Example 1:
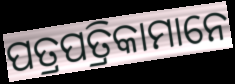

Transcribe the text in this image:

ପତ୍ରପତ୍ରିକାମାନେ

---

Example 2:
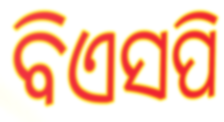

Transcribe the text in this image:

ବିଏସପି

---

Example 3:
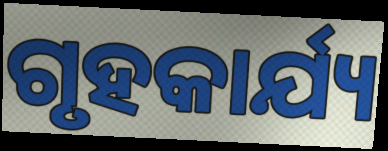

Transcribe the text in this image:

ଗୃହକାର୍ଯ୍ୟ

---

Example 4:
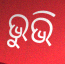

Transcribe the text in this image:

ଭୁଭି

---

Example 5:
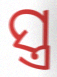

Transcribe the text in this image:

ସ୍ତ୍ର